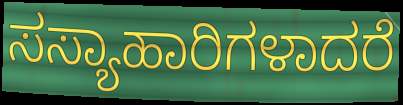
ಸಸ್ಯಾಹಾರಿಗಳಾದರೆ